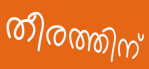
തീരത്തിന്